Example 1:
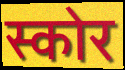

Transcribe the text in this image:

स्कोर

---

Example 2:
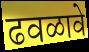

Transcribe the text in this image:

ढवळावे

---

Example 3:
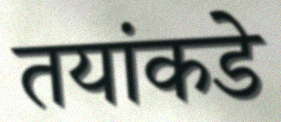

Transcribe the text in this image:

तयांकडे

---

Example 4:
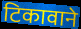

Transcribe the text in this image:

टिकावाने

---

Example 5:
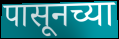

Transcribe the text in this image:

पासूनच्या